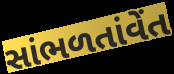
સાંભળતાંવેંત